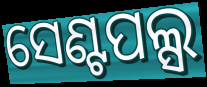
ସେଣ୍ଟପଲ୍ସ